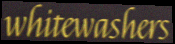
whitewashers